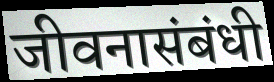
जीवनासंबंधी